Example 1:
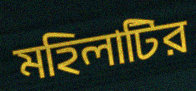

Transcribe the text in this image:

মহিলাটির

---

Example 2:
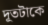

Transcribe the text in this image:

দূতটাকে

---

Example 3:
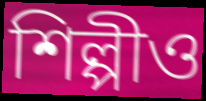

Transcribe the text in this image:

শিল্পীও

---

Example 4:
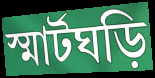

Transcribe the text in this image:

স্মার্টঘড়ি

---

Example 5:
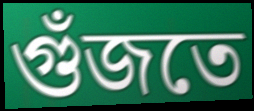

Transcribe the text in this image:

গুঁজতে